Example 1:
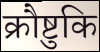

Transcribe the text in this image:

क्रौष्टुकि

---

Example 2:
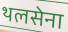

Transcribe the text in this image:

थलसेना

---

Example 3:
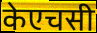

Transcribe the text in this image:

केएचसी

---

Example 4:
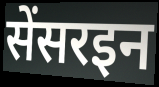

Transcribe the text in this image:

सेंसरइन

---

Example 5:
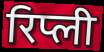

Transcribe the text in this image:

रिप्ली